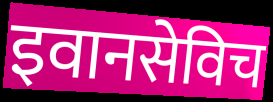
इवानसेविच